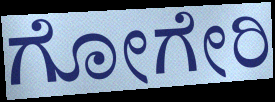
ಗೋಗೇರಿ